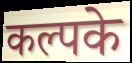
कल्पके